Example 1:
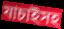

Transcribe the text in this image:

যাচাইসহ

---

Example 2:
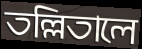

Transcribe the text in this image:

তল্লিতালে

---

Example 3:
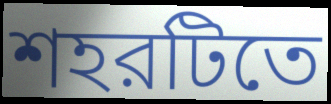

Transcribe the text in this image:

শহরটিতে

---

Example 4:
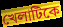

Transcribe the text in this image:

খেলাটিকে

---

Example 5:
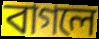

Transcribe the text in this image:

বাগলে